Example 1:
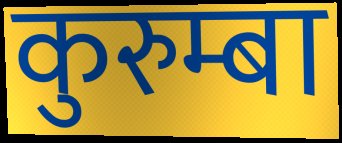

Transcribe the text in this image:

कुरुम्बा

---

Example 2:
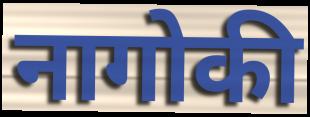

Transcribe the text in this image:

नागोकी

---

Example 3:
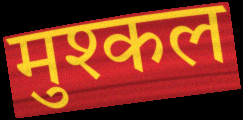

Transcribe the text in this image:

मुश्कल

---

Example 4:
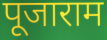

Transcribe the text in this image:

पूजाराम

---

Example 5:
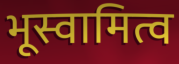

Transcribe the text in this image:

भूस्वामित्व